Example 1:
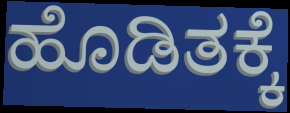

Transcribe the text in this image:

ಹೊಡಿತಕ್ಕೆ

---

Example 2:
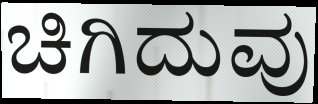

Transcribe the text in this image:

ಚಿಗಿದುವು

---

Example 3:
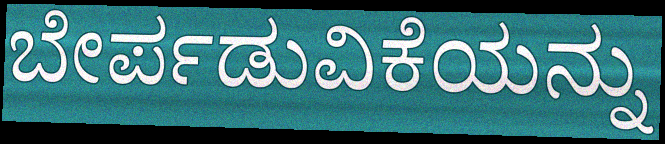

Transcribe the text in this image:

ಬೇರ್ಪಡುವಿಕೆಯನ್ನು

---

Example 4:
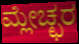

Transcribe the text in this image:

ಮ್ಲೇಚ್ಛರ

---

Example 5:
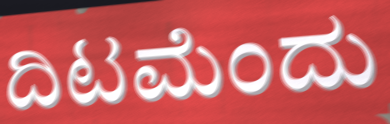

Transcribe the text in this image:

ದಿಟಮೆಂದು